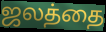
ஜலத்தை